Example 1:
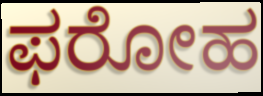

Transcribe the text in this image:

ಫರೋಹ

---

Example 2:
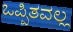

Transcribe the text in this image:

ಒಪ್ಪಿತವಲ್ಲ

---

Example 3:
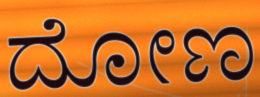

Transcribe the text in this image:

ದೋಣ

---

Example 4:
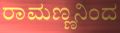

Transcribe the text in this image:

ರಾಮಣ್ಣನಿಂದ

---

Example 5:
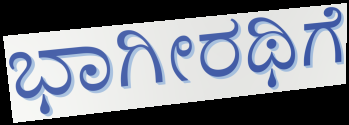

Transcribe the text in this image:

ಭಾಗೀರಥಿಗೆ